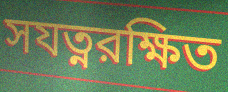
সযত্নরক্ষিত